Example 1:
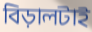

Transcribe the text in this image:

বিড়ালটাই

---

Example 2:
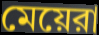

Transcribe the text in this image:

মেয়েরা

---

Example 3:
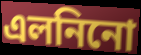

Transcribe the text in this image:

এলনিনো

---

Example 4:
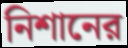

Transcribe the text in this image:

নিশানের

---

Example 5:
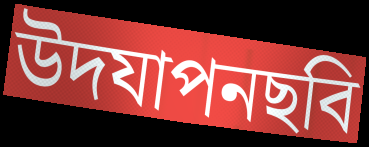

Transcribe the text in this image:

উদযাপনছবি